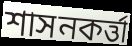
শাসনকৰ্ত্তা